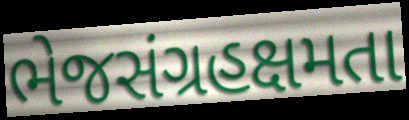
ભેજસંગ્રહક્ષમતા